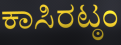
ಕಾಸಿರಟ್ಠಂ